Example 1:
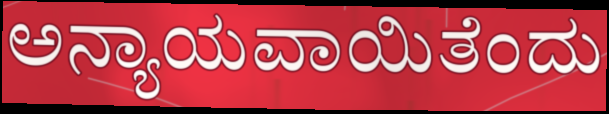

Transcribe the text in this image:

ಅನ್ಯಾಯವಾಯಿತೆಂದು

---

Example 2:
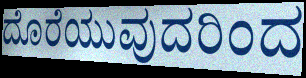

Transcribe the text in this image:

ದೊರೆಯುವುದರಿಂದ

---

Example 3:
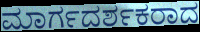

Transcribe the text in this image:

ಮಾರ್ಗದರ್ಶಕರಾದ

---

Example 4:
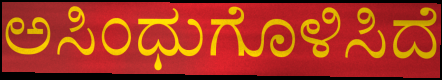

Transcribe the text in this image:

ಅಸಿಂಧುಗೊಳಿಸಿದೆ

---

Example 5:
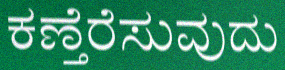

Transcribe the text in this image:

ಕಣ್ತೆರೆಸುವುದು